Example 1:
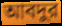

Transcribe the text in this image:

আবদুর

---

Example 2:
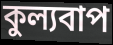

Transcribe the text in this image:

কুল্যবাপ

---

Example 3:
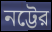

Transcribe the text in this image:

নট্টের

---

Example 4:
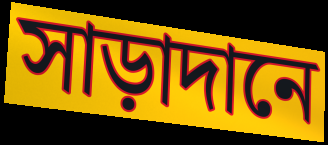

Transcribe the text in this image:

সাড়াদানে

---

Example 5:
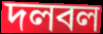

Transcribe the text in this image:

দলবল